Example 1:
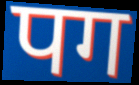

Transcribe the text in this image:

पग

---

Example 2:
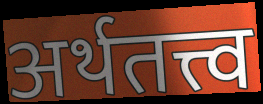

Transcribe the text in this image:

अर्थतत्त्व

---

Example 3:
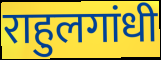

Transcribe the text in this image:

राहुलगांधी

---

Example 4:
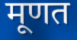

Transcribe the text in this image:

मूणत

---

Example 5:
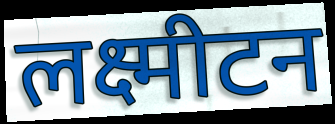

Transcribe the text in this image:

लक्ष्मीटन